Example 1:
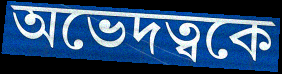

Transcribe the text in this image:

অভেদত্বকে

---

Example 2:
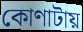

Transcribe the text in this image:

কোণাটায়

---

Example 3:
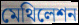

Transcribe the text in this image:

মেথিলেশন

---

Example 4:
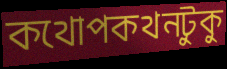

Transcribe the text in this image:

কথোপকথনটুকু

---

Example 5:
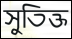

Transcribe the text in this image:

সুতিক্ত